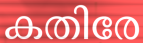
കതിരേ